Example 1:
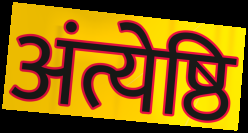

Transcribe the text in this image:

अंत्येष्ठि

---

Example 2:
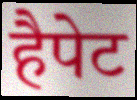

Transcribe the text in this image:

हैपेट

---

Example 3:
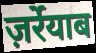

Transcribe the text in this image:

ज़र्रेयाब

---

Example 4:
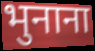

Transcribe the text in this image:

भुनाना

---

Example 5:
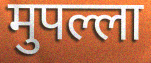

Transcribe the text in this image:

मुपल्ला